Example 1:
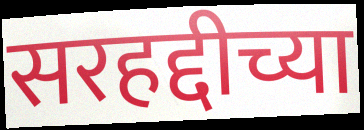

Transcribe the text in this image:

सरहद्दीच्या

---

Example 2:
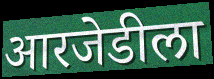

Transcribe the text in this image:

आरजेडीला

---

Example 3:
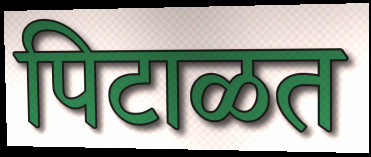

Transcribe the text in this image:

पिटाळत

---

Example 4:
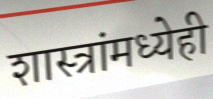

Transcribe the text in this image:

शास्त्रांमध्येही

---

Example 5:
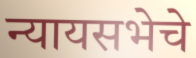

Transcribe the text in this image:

न्यायसभेचे